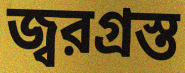
জ্বরগ্রস্ত